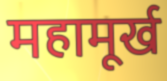
महामूर्ख